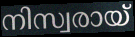
നിസ്വരായ്